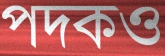
পদকও